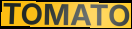
TOMATO